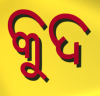
କୁଦ